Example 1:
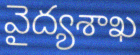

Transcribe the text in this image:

వైద్యశాఖ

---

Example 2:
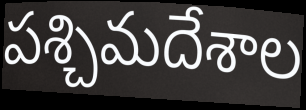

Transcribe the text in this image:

పశ్చిమదేశాల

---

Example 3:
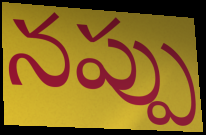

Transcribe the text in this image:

నప్పు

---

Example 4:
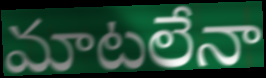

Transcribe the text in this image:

మాటలేనా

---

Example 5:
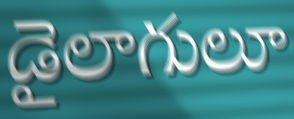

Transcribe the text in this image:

డైలాగులూ